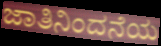
ಜಾತಿನಿಂದನೆಯ